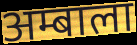
अम्बाला